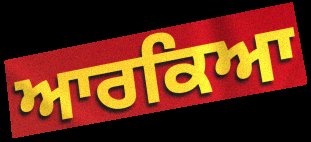
ਆਰਕਿਆ